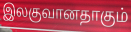
இலகுவானதாகும்